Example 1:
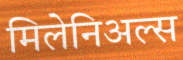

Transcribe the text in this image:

मिलेनिअल्स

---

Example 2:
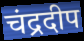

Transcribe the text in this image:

चंद्रदीप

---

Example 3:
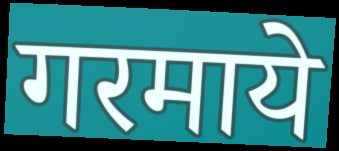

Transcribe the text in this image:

गरमाये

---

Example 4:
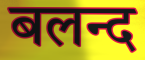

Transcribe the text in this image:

बलन्द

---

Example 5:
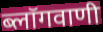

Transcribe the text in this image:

ब्लॉगवाणी